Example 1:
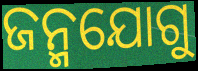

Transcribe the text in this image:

ଜନ୍ମଯୋଗୁ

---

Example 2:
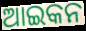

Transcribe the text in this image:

ଆଇକନ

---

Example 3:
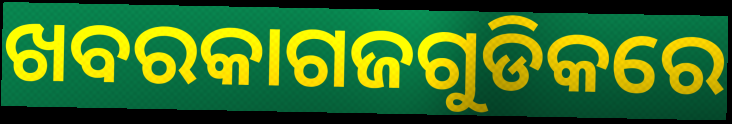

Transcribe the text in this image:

ଖବରକାଗଜଗୁଡିକରେ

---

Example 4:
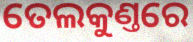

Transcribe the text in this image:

ତେଲକୁଣ୍ତରେ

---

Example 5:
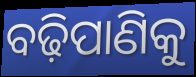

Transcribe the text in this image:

ବଢ଼ିପାଣିକୁ